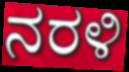
ನರಳಿ